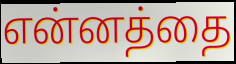
என்னத்தை